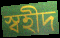
স্বহীদ